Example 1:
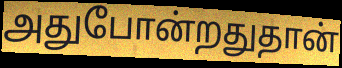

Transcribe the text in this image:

அதுபோன்றதுதான்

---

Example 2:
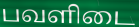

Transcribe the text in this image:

பவளிடை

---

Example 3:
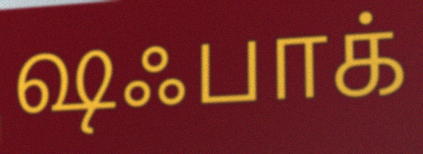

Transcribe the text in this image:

ஷஃபாக்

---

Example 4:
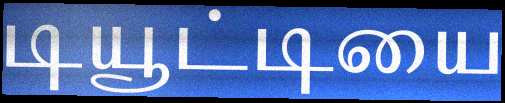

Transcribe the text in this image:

டியூட்டியை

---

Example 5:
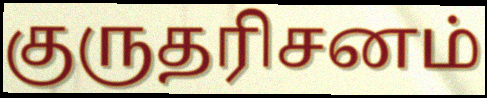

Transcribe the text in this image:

குருதரிசனம்